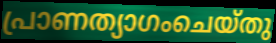
പ്രാണത്യാഗംചെയ്തു